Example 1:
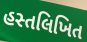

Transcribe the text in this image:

હસ્તલિખિત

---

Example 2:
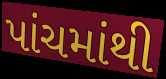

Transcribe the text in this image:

પાંચમાંથી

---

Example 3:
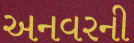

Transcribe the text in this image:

અનવરની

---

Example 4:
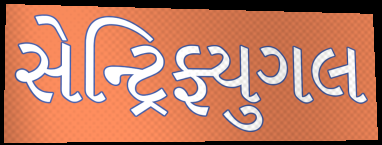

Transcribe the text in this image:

સેન્ટ્રિફ્યુગલ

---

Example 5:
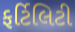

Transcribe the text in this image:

ફર્ટિલિટી